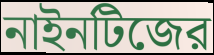
নাইনটিজের